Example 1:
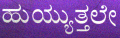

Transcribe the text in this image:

ಹುಯ್ಯುತ್ತಲೇ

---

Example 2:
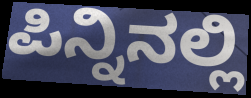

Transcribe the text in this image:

ಪಿನ್ನಿನಲ್ಲಿ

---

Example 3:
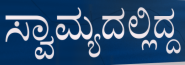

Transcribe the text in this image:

ಸ್ವಾಮ್ಯದಲ್ಲಿದ್ದ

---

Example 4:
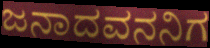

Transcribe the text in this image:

ಜನಾದವನನಿಗ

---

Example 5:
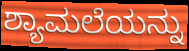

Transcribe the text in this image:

ಶ್ಯಾಮಲೆಯನ್ನು